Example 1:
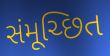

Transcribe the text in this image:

સંમૂચ્છિત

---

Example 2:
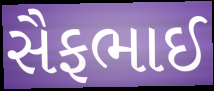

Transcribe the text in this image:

સૈફભાઈ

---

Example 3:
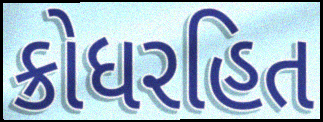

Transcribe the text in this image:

ક્રોધરહિત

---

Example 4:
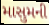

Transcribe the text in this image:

માસુમની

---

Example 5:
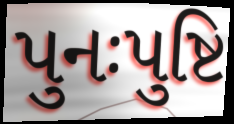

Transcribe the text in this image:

પુનઃપુષ્ટિ